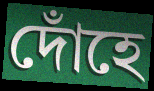
দোঁহে